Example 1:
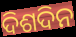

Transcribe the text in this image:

ଦିଶଦିନ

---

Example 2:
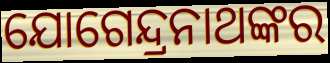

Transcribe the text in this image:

ଯୋଗେନ୍ଦ୍ରନାଥଙ୍କର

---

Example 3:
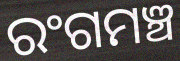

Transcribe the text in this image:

ରଂଗମଞ୍ଚ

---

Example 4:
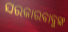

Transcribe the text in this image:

ସରକାରବାବୁଙ୍କ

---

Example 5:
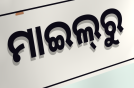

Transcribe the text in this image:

ମାଇଲ୍‌ରୁ